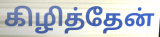
கிழித்தேன்